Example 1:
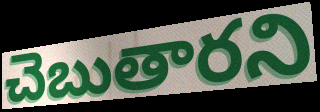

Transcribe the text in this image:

చెబుతారని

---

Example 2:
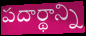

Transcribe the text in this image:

పదార్థాన్ని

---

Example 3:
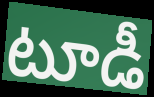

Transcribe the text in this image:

టూడీ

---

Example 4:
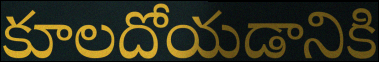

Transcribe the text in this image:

కూలదోయడానికి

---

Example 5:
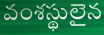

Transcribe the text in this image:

వంశస్థులైన